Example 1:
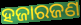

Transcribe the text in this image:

ହଜାରଜଣ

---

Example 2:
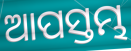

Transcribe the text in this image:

ଆପସ୍ତମ୍ଭ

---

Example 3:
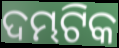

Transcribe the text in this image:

ଦମ୍ଭଟିକ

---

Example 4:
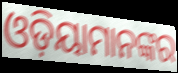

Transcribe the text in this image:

ଓଡ଼ିୟାମାନଙ୍କର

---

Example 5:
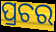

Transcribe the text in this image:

ପ୍ରଚର